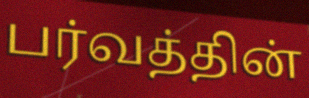
பர்வத்தின்